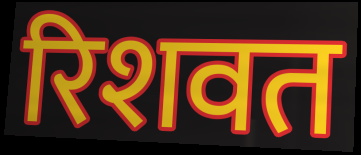
रिशवत